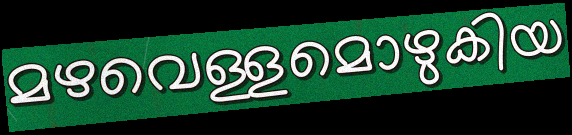
മഴവെള്ളമൊഴുകിയ